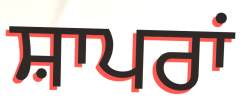
ਸ਼ਾਪਰਾਂ